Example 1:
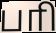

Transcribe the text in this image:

பரி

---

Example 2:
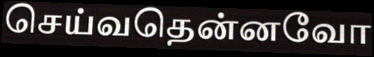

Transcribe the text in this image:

செய்வதென்னவோ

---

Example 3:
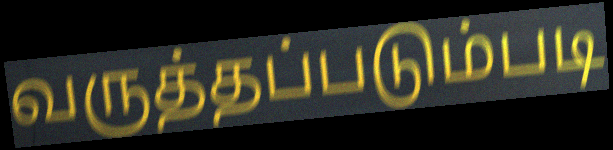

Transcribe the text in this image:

வருத்தப்படும்படி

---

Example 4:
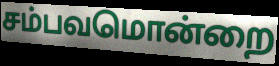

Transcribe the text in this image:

சம்பவமொன்றை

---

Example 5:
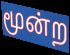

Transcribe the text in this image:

மூன்ற